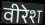
वीरेश